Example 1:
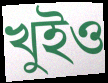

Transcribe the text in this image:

খুইও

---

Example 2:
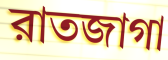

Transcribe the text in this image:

রাতজাগা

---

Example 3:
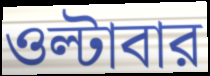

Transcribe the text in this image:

ওল্টাবার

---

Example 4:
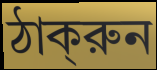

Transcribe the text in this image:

ঠাক্‌রুন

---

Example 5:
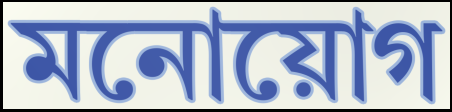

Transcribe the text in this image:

মনোয়োগ